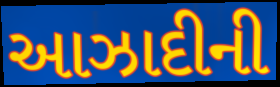
આઝાદીની